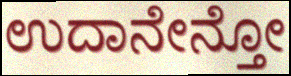
ಉದಾನೇನ್ತೋ